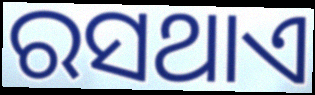
ରସଥାଏ